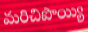
మరిచిపొయ్యి